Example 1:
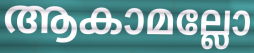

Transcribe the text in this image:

ആകാമല്ലോ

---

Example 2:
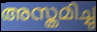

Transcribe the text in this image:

അസ്തമിച്ചു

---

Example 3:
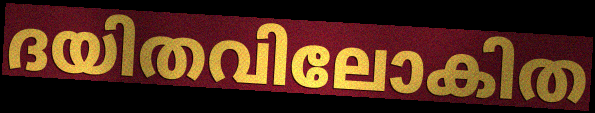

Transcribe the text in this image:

ദയിതവിലോകിത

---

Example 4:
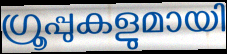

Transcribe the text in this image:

ഗ്രൂപ്പുകളുമായി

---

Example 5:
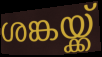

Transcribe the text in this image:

ശങ്കയ്ക്ക്